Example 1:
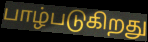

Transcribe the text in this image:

பாழ்படுகிறது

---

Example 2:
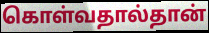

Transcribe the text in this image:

கொள்வதால்தான்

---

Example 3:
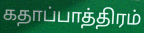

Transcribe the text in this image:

கதாப்பாத்திரம்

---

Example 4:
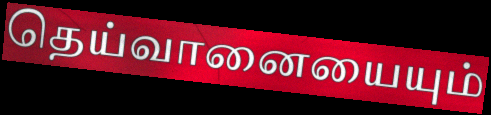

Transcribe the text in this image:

தெய்வானையையும்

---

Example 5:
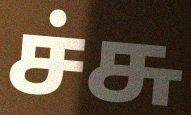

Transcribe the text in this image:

ச்சு